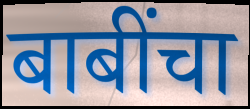
बाबींचा